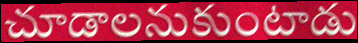
చూడాలనుకుంటాడు